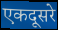
एकदूसरे